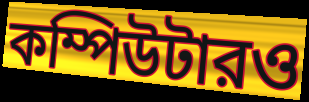
কম্পিউটারও